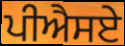
ਪੀਐਸਏ